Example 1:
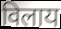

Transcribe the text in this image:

विलाय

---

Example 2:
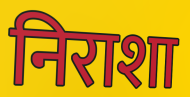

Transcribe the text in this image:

निराशा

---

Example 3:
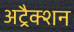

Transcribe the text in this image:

अट्रैक्शन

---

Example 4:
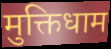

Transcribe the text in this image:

मुक्तिधाम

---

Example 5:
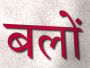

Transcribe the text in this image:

बलों